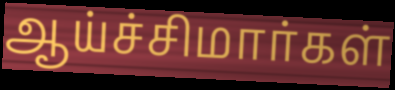
ஆய்ச்சிமார்கள்